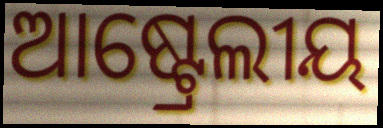
ଆଷ୍ଟ୍ରେଲୀୟ